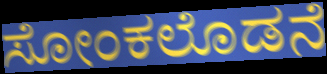
ಸೋಂಕಲೊಡನೆ